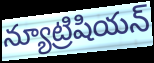
న్యూట్రిషియన్